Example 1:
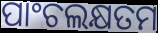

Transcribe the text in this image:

ପାଂଚଲକ୍ଷତମ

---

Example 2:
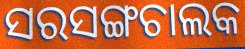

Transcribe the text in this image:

ସରସଙ୍ଗଚାଲକ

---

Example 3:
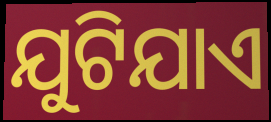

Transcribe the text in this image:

ଯୁଟିଯାଏ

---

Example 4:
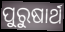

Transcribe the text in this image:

ପୁରୁଷାର୍ଥ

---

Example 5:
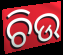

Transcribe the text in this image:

ଚିଉ